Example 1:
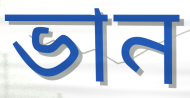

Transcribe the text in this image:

ভান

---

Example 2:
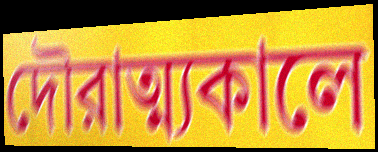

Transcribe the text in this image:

দৌরাত্ম্যকালে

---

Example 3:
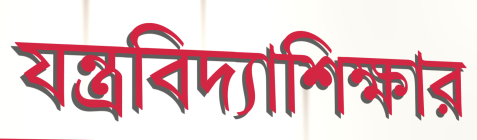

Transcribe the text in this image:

যন্ত্রবিদ্যাশিক্ষার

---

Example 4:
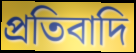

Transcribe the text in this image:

প্রতিবাদি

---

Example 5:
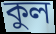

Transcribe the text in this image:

কুল